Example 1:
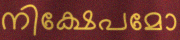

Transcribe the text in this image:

നിക്ഷേപമോ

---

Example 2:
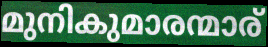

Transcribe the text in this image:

മുനികുമാരന്മാര്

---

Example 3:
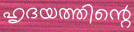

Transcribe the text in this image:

ഹൃദയത്തിന്റെ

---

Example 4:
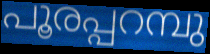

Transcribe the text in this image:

പൂരപ്പറമ്പു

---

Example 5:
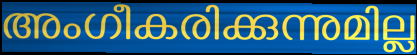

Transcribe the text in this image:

അംഗീകരിക്കുന്നുമില്ല